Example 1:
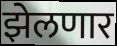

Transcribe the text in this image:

झेलणार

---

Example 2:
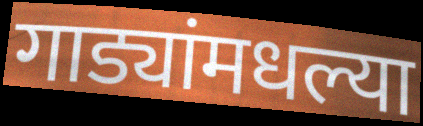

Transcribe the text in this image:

गाड्यांमधल्या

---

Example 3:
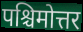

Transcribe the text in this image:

पश्चिमोत्तर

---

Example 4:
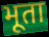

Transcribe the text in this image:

भूता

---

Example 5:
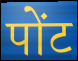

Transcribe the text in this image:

पोंट